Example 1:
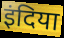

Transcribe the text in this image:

इंदिया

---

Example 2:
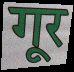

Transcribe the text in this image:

गूर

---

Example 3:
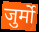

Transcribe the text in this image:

जुर्मो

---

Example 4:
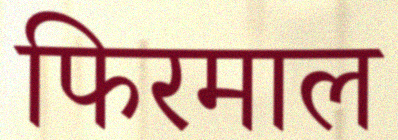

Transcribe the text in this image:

फिरमाल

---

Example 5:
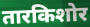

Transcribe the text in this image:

तारकिशोर